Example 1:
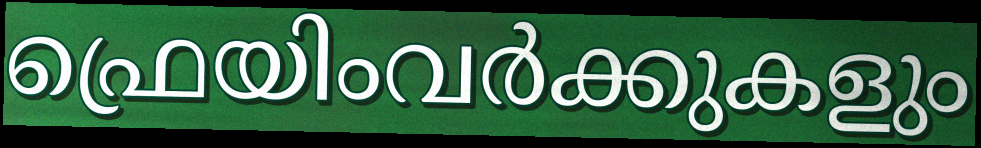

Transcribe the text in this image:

ഫ്രെയിംവർക്കുകളും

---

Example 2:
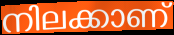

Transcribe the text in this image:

നിലക്കാണ്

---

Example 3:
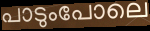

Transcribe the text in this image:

പാടുംപോലെ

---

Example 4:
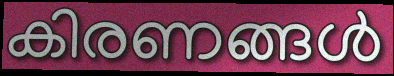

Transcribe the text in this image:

കിരണങ്ങൾ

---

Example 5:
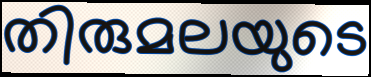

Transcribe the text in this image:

തിരുമലയുടെ